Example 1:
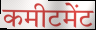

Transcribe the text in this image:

कमीटमेंट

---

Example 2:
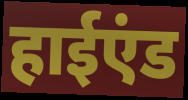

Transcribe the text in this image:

हाईएंड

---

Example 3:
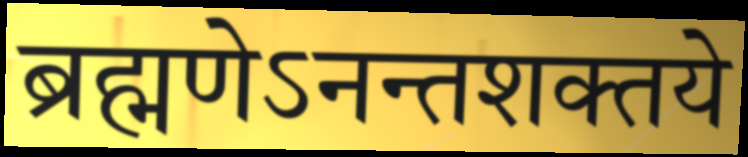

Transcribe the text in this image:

ब्रह्मणेऽनन्तशक्तये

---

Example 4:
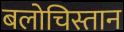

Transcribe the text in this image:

बलोचिस्तान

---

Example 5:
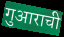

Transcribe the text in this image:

गुआराची